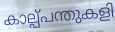
കാല്പ്പന്തുകളി